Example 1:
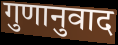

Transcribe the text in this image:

गुणानुवाद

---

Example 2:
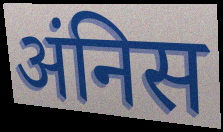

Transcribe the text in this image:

अंनिस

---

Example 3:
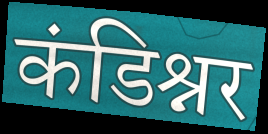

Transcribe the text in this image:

कंडिश्नर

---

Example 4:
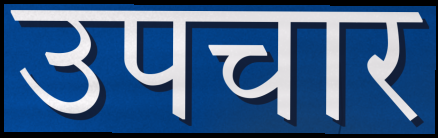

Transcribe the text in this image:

उपचार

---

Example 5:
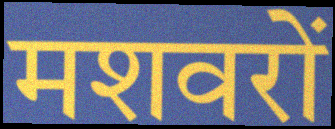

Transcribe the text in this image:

मशवरों